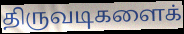
திருவடிகளைக்